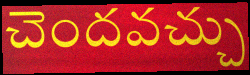
చెందవచ్చు